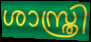
ശാസ്ത്രി